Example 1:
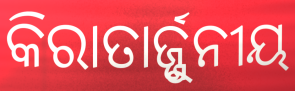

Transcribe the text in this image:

କିରାତାର୍ଜ୍ଜୁନୀୟ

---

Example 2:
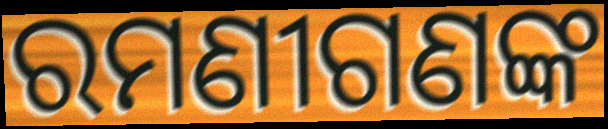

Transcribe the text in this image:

ରମଣୀଗଣଙ୍କ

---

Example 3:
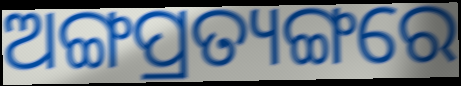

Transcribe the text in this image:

ଅଙ୍ଗପ୍ରତ୍ୟଙ୍ଗରେ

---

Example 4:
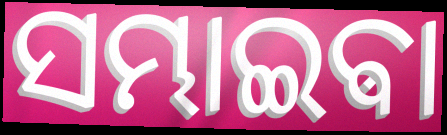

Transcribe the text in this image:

ସମ୍ଭାଇଵା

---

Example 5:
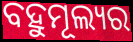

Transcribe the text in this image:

ବହୁମୂଲ୍ୟର